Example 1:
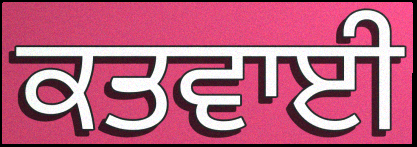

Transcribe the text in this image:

ਕਤਵਾਈ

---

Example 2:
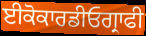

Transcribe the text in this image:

ਈਕੋਕਾਰਡੀਓਗ੍ਰਾਫੀ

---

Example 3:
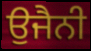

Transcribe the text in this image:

ਉਜੈਨੀ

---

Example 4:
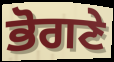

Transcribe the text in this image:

ਭੋਗਣੇ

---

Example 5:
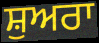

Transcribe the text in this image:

ਸ਼ੁਅਰਾ